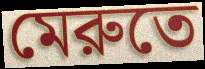
মেরুতে